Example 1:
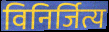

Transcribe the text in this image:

विनिर्जित्य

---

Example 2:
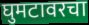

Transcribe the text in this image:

घुमटावरचा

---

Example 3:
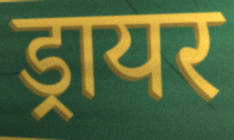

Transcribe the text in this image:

ड्रायर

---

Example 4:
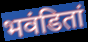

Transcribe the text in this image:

भवंडितां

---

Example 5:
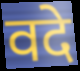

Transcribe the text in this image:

वदे